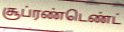
சூப்ரண்டெண்ட்